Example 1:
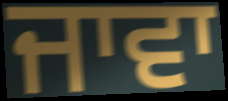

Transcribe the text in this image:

ਜਾਵਾ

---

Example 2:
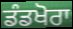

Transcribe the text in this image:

ਡੰਡਖੋਰਾ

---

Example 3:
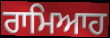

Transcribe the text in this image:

ਰਾਮਿਆਹ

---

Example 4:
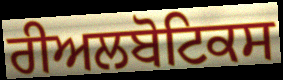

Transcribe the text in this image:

ਰੀਅਲਬੋਟਿਕਸ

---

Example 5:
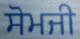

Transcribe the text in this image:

ਸੋਮਜੀ